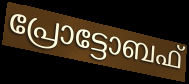
പ്രോട്ടോബഫ്